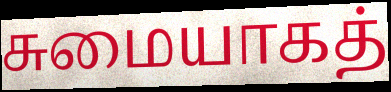
சுமையாகத்